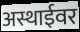
अस्थाईवर